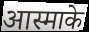
आस्माके